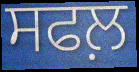
ਸਫਲ਼